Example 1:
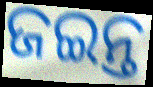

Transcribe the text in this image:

ଜଇନ୍ତ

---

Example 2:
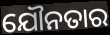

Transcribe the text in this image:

ଯୌନତାର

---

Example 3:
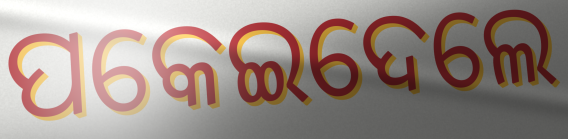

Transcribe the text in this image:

ପକେଇଦେଲେ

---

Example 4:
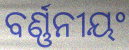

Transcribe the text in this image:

ବର୍ଣ୍ଣନୀୟଂ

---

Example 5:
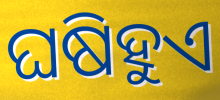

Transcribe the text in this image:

ଘଷିହୁଏ